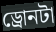
ড্রোনটা